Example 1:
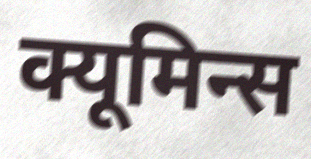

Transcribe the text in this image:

क्यूमिन्स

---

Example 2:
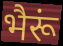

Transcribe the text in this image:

भैरूं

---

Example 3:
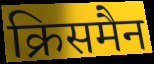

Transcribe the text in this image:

क्रिसमैन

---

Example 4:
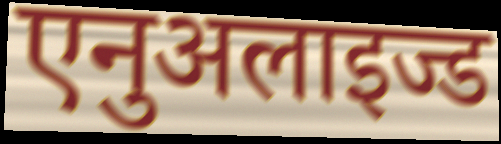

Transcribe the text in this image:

एनुअलाइज्ड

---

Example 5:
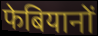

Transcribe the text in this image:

फेबियानों